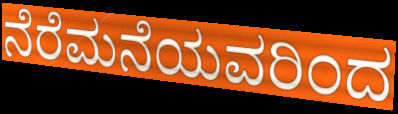
ನೆರೆಮನೆಯವರಿಂದ